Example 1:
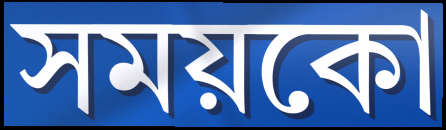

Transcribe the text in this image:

সময়কো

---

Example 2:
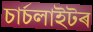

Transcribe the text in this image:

চাৰ্চলাইটৰ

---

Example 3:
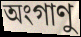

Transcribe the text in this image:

অংগাণু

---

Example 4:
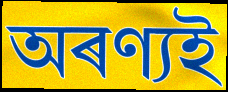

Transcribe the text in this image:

অৰণ্যই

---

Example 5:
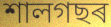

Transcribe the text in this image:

শালগছৰ